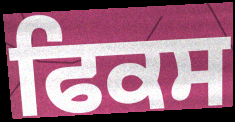
ਫਿਕਸ